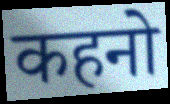
कहनो